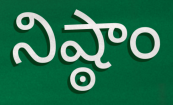
నిష్ఠాం